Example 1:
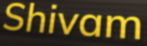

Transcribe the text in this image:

Shivam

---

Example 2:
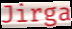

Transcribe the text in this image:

Jirga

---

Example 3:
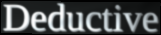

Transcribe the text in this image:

Deductive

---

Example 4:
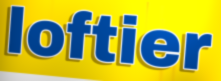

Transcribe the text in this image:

loftier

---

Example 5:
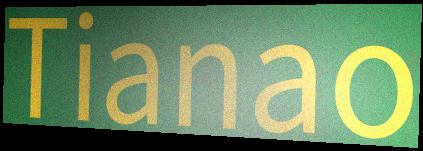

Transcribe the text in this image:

Tianao